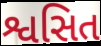
શ્વસિત